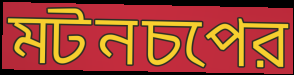
মটনচপের